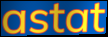
astat